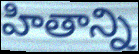
హితాన్ని